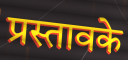
प्रस्तावके